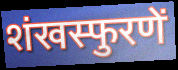
शंखस्फुरणें